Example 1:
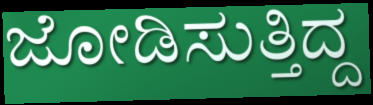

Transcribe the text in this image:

ಜೋಡಿಸುತ್ತಿದ್ದ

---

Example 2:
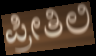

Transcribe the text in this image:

ಪ್ರೀತಿಲಿ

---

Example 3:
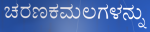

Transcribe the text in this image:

ಚರಣಕಮಲಗಳನ್ನು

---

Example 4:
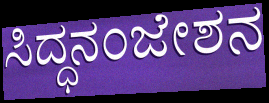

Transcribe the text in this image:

ಸಿದ್ಧನಂಜೇಶನ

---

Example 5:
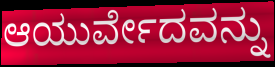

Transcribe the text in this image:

ಆಯುರ್ವೇದವನ್ನು